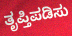
ತೃಪ್ತಿಪಡಿಸು